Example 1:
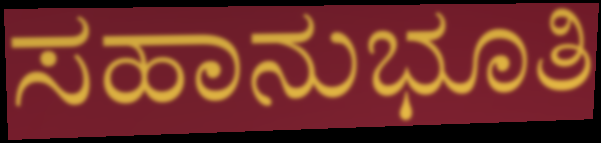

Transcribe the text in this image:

ಸಹಾನುಭೂತಿ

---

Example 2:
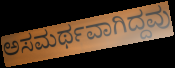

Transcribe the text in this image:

ಅಸಮರ್ಥವಾಗಿದ್ದವು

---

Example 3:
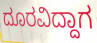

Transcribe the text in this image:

ದೂರವಿದ್ದಾಗ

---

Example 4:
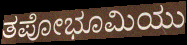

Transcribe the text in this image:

ತಪೋಭೂಮಿಯು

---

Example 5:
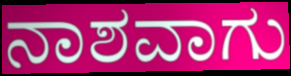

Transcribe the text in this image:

ನಾಶವಾಗು